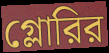
গ্লোরির